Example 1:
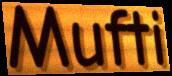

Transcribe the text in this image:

Mufti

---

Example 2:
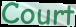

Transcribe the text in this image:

Court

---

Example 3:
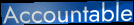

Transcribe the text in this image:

Accountable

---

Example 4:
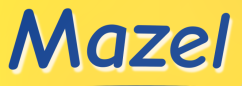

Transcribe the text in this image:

Mazel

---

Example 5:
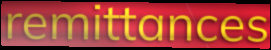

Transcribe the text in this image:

remittances